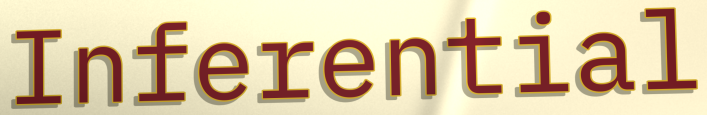
Inferential